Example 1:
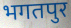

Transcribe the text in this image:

भगतपुर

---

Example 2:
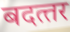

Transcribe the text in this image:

बदत्‍तर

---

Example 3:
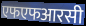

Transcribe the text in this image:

एफएफआरसी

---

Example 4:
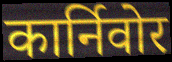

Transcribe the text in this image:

कार्निवोर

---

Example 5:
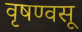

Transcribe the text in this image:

वृषण्वसू